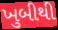
ખુબીથી